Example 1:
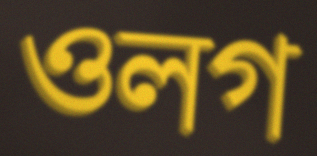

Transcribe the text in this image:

ওলগ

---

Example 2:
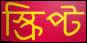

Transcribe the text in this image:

স্ক্ৰিপ্ট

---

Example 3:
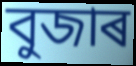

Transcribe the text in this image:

বুজাৰ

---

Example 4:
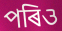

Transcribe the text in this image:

পৰিও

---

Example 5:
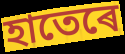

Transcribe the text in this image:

হাতেৰে